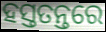
ହସ୍ତତନ୍ତରେ